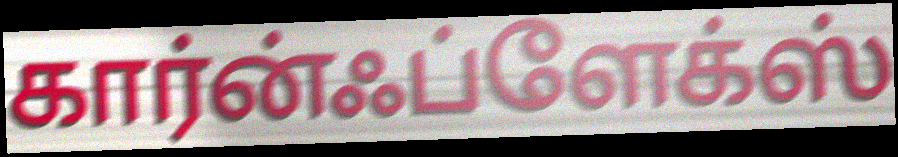
கார்ன்ஃப்ளேக்ஸ்